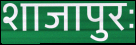
शाजापुरः